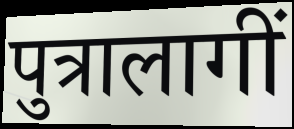
पुत्रालागीं